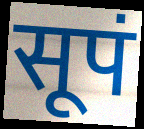
सूपं